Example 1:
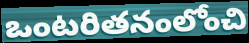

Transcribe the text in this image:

ఒంటరితనంలోంచి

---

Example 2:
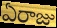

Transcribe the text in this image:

ఏరాజు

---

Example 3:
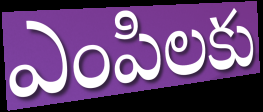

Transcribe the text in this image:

ఎంపిలకు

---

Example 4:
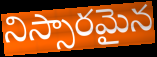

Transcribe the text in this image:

నిస్సారమైన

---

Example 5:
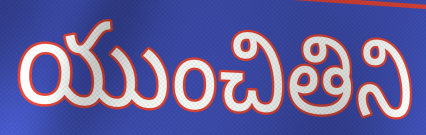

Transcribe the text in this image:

యుంచితిని